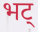
भट्